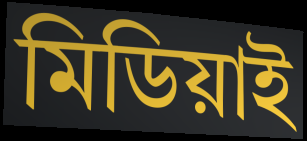
মিডিয়াই